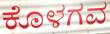
ಕೊಳಗವ